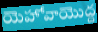
యెహోవాయొద్ద